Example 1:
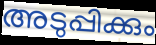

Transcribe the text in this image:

അടുപ്പിക്കും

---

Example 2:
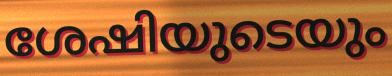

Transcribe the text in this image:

ശേഷിയുടെയും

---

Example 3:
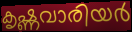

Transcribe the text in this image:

കൃഷ്ണവാരിയർ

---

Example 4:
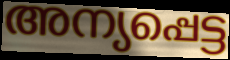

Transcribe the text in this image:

അന്യപ്പെട്ട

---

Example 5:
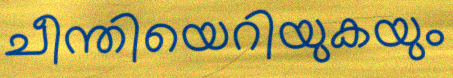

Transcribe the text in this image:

ചീന്തിയെറിയുകയും